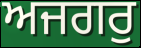
ਅਜਗਰੁ